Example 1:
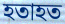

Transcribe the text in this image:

হতাহত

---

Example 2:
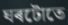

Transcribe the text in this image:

ঘৰটোতে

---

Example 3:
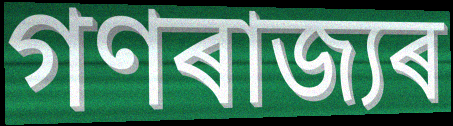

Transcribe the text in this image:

গণৰাজ্যৰ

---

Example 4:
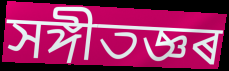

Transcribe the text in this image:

সঙ্গীতজ্ঞৰ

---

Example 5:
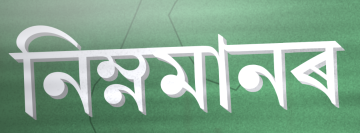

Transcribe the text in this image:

নিম্নমানৰ